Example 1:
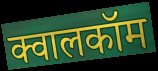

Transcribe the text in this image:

क्वालकॉम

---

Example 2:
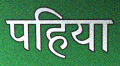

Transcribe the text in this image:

पहिया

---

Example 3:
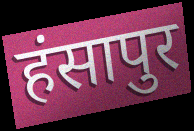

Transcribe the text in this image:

हंसापुर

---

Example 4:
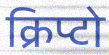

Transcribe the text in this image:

क्रिप्टो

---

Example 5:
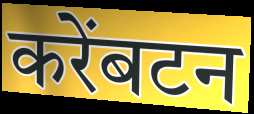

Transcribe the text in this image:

करेंबटन